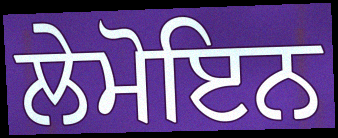
ਲੇਮੋਇਨ